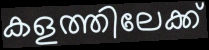
കളത്തിലേക്ക്